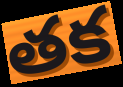
తక